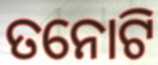
ତନୋଟି